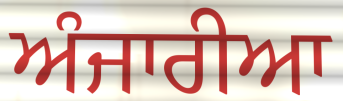
ਅੰਜਾਰੀਆ